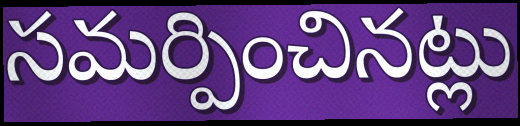
సమర్పించినట్లు